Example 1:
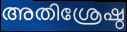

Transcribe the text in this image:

അതിശ്രേഷ്ഠ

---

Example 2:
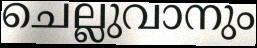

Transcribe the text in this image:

ചെല്ലുവാനും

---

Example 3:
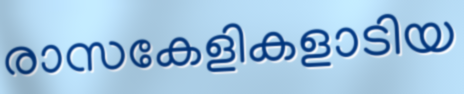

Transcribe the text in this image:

രാസകേളികളാടിയ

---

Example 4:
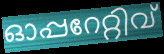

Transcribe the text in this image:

ഓപ്പറേറ്റിവ്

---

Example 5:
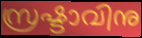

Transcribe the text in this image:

സ്രഷ്ടാവിനു